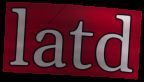
latd